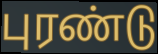
புரண்டு